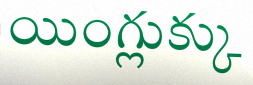
యింగ్లుక్కు